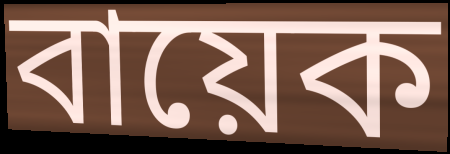
বায়েক